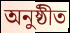
অনুষ্ঠীত